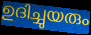
ഉദിച്ചുയരും